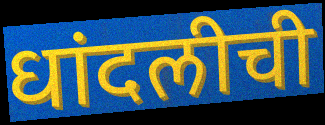
धांदलीची